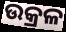
ଉକ୍ରଳ